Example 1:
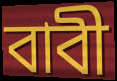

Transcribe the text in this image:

বাবী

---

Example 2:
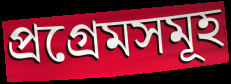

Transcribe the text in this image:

প্ৰগ্ৰেমসমূহ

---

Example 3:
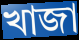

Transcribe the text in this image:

খাজা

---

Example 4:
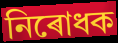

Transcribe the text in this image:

নিৰোধক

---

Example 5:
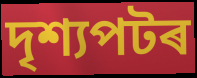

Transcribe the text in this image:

দৃশ্যপটৰ